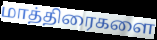
மாத்திரைகளை